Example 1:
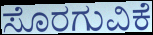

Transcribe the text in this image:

ಸೊರಗುವಿಕೆ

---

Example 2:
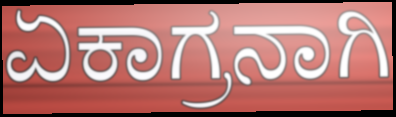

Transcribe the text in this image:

ಏಕಾಗ್ರನಾಗಿ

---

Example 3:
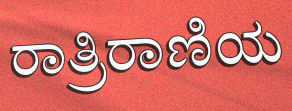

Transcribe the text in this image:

ರಾತ್ರಿರಾಣಿಯ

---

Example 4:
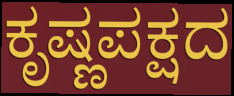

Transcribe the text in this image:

ಕೃಷ್ಣಪಕ್ಷದ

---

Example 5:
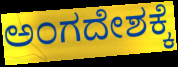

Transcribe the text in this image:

ಅಂಗದೇಶಕ್ಕೆ